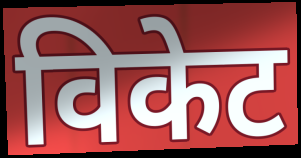
विकेट